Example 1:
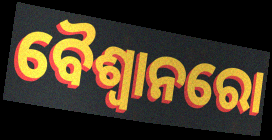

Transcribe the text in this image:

ବୈଶ୍ୱାନରୋ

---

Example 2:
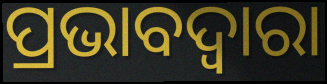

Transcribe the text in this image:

ପ୍ରଭାବଦ୍ୱାରା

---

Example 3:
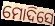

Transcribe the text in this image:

ମୋଦିସେ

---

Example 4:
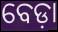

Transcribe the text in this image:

ବେଡ଼ା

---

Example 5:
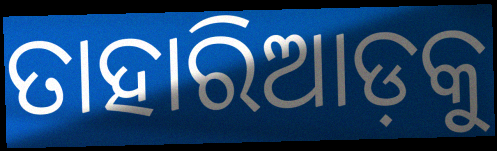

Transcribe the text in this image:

ତାହାରିଆଡ଼କୁ